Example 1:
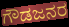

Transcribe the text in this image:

ಗೌಡಜನರ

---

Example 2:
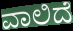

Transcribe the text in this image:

ವಾಲಿದೆ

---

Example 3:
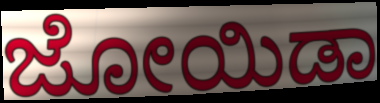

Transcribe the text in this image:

ಜೋಯಿಡಾ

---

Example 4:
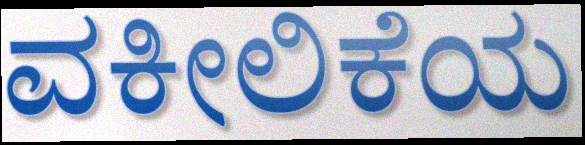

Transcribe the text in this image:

ವಕೀಲಿಕೆಯ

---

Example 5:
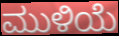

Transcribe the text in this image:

ಮುಳಿಯೆ